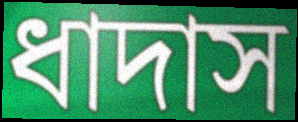
ধাদাস